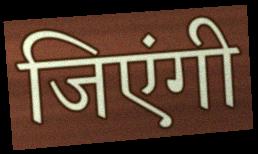
जिएंगी